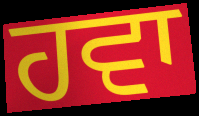
ਹਵਾ